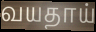
வயதாய்